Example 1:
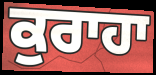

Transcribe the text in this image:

ਕੁਰਾਹਾ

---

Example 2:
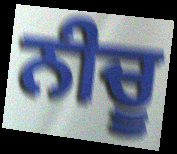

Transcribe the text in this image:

ਨੀਚੂ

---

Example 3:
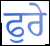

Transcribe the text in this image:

ਫੁਰੇ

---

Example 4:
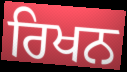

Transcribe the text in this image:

ਰਿਖਨ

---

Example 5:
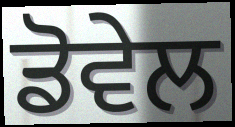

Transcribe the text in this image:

ਡੋਵੇਲ